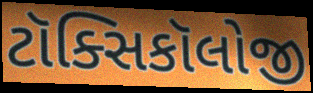
ટૉક્સિકૉલોજી